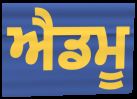
ਐਡਮੂ